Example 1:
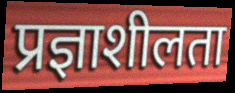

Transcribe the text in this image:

प्रज्ञाशीलता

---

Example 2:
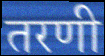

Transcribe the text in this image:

तरणी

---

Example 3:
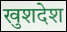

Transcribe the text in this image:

खुशदेश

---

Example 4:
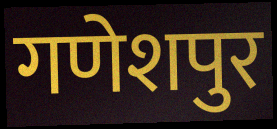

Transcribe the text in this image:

गणेशपुर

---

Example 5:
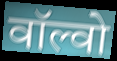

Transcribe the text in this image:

वॉल्‍वो